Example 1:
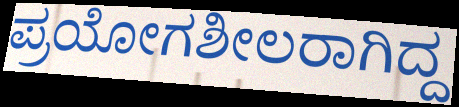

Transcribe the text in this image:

ಪ್ರಯೋಗಶೀಲರಾಗಿದ್ದ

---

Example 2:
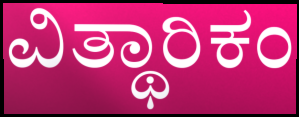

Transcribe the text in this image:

ವಿತ್ಥಾರಿಕಂ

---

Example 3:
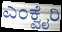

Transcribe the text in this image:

ಎಂಕ್ವೈರಿ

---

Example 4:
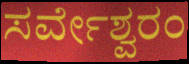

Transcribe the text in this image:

ಸರ್ವೇಶ್ವರಂ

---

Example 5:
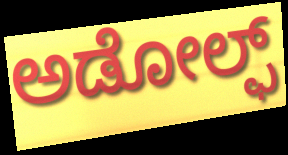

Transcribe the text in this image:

ಅಡೋಲ್ಫ್